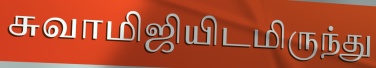
சுவாமிஜியிடமிருந்து